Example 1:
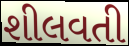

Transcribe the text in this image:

શીલવતી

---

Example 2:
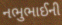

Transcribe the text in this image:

નભુભાઈની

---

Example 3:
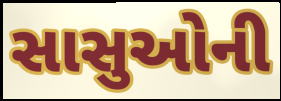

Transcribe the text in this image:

સાસુઓની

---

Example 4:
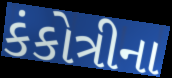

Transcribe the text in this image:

કંકોત્રીના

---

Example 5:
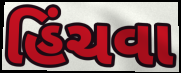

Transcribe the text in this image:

હિંચવા